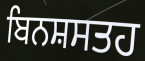
ਬਿਨਸ਼ਸਤਹ